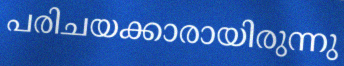
പരിചയക്കാരായിരുന്നു